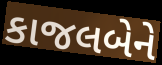
કાજલબેને